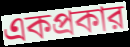
একপ্রকার